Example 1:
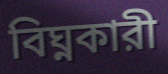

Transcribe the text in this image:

বিঘ্নকারী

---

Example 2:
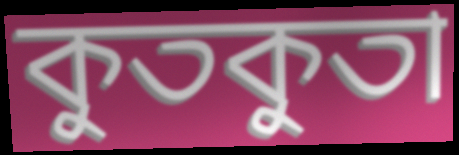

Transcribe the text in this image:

কুতকুতা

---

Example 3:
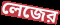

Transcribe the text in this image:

লেজের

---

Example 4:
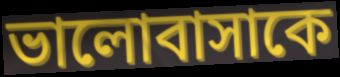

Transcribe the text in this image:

ভালোবাসাকে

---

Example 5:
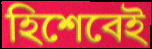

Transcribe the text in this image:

হিশেবেই